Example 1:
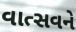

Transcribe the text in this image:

વાત્સવને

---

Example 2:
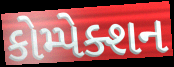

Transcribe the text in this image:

કોમ્પેક્શન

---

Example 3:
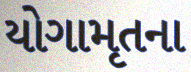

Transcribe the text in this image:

યોગામૃતના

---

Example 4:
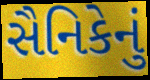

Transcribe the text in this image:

સૈનિકેનું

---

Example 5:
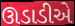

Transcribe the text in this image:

ઊડાડીએ